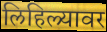
लिहिल्यावर